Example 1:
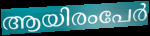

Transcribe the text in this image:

ആയിരംപേർ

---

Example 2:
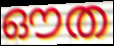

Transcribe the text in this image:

ഔത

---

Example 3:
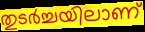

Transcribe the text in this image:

തുടർച്ചയിലാണ്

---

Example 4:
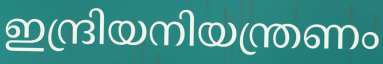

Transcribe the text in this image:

ഇന്ദ്രിയനിയന്ത്രണം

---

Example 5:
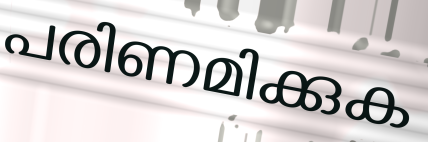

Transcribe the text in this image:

പരിണമിക്കുക